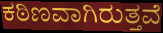
ಕಠಿಣವಾಗಿರುತ್ತವೆ